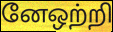
னேஒற்றி